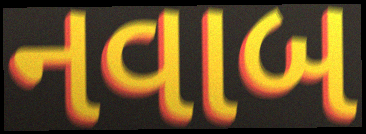
નવાબ